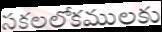
సకలలోకములకు